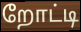
றோட்டி